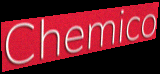
Chemico